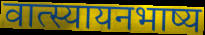
वात्स्यायनभाष्य